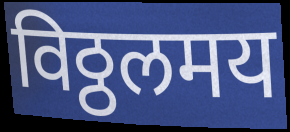
विठ्ठलमय